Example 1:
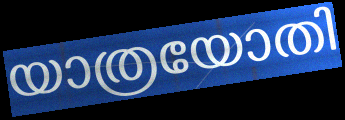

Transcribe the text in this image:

യാത്രയോതി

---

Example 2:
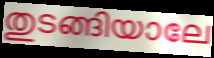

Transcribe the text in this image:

തുടങ്ങിയാലേ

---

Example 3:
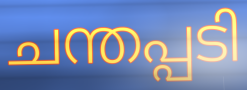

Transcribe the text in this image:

ചന്തപ്പടി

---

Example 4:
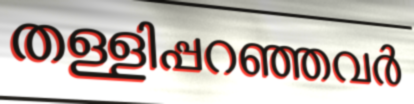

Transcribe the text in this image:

തള്ളിപ്പറഞ്ഞവർ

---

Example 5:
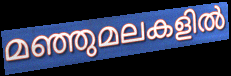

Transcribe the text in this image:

മഞ്ഞുമലകളിൽ